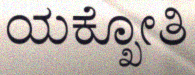
ಯಕ್ಖೋತಿ